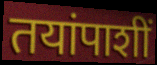
तयांपाशीं